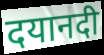
दयानदी